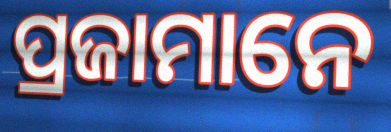
ପ୍ରଜାମାନେ